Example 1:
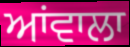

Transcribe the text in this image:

ਆਂਵਾਲਾ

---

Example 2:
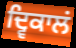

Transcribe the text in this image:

ਦ੍ਵਿਕਾਲਂ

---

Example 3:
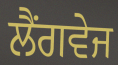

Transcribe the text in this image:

ਲੈਂਗਵੇਜ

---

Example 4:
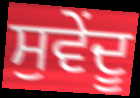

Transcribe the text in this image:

ਸੁਵੇਂਦੂ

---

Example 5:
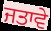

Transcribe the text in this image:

ਜਤਾਵੇ